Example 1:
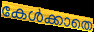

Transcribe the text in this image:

കേൾക്കാതെ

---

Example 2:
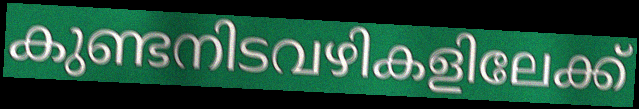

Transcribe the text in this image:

കുണ്ടനിടവഴികളിലേക്ക്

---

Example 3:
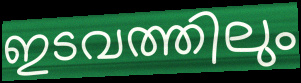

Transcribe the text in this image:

ഇടവത്തിലും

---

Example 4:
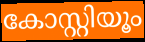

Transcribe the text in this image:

കോസ്റ്റിയൂം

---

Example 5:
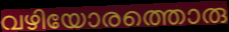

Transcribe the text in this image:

വഴിയോരത്തൊരു